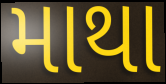
માથા